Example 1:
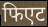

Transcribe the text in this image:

फिएट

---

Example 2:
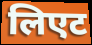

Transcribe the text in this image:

लिएट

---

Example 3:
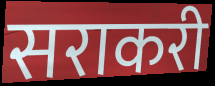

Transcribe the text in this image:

सराकरी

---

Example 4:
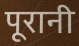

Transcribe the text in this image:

पूरानी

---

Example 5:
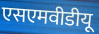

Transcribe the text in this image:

एसएमवीडीयू